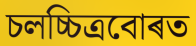
চলচ্চিত্ৰবোৰত